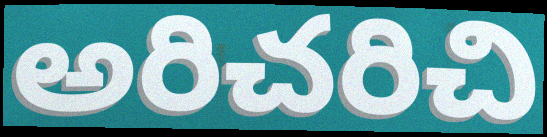
అరిచరిచి